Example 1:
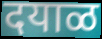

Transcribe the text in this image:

दयाळ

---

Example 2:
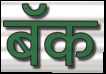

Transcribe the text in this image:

बॅक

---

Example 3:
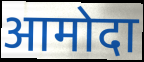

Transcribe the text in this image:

आमोदा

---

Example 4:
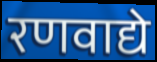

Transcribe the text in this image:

रणवाद्ये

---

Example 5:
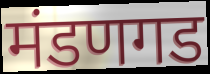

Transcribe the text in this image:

मंडणगड